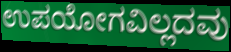
ಉಪಯೋಗವಿಲ್ಲದವು